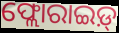
ଫ୍ଲୋରାଇଡ଼୍